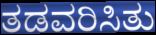
ತಡವರಿಸಿತು